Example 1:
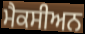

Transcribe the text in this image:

ਮੈਕਸੀਅਨ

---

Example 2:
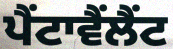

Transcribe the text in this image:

ਪੈਂਟਾਵੈਂਲੈਂਟ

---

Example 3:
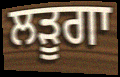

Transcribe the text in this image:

ਲੜੂਗਾ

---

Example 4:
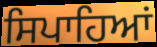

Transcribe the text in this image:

ਸਿਪਾਹਿਆਂ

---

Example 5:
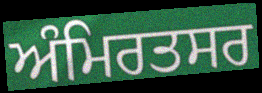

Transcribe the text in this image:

ਅੰਮਿਰਤਸਰ